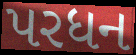
પરધન